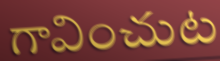
గావించుట